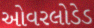
ઓવરલોડેડ